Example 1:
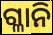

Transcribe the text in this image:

ଗ୍ଳାନି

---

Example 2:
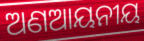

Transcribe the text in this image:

ଅଣଆୟନୀୟ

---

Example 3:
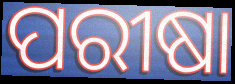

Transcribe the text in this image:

ପରୀଷା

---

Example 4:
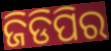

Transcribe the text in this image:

ଜିଡିପିର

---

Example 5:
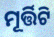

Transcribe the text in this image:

ମୂର୍ତ୍ତିଟି